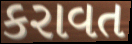
કરાવત